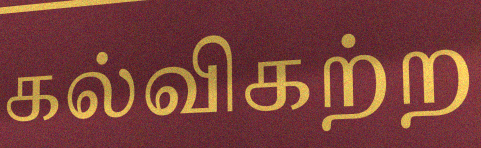
கல்விகற்ற